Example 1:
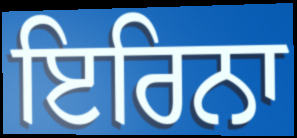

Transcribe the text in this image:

ਇਰਿਨਾ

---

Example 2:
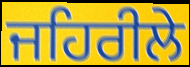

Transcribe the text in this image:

ਜਹਿਰੀਲੇ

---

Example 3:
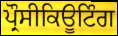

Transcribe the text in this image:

ਪ੍ਰੌਸੀਕਿਊਟਿੰਗ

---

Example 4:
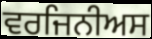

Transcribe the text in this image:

ਵਰਜਿਨੀਅਸ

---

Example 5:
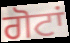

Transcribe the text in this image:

ਗੋਟਾਂ